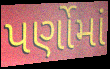
પર્ણોમાં